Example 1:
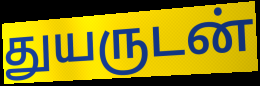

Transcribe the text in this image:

துயருடன்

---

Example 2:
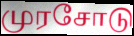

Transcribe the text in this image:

முரசோடு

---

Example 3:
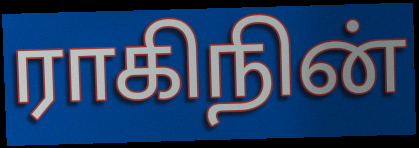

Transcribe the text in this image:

ராகிநின்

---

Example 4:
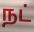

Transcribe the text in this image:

நட்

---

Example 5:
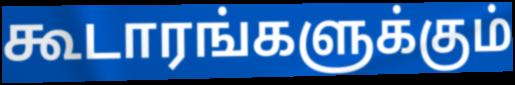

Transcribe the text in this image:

கூடாரங்களுக்கும்